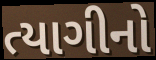
ત્યાગીનો